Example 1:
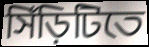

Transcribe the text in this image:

সিঁড়িটিতে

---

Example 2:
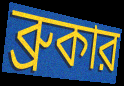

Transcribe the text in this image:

ব্রুকার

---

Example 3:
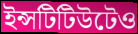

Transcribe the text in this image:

ইন্সটিটিউটেও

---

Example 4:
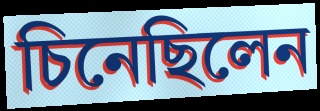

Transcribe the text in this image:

চিনেছিলেন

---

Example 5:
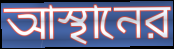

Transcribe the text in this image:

আস্থানের